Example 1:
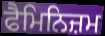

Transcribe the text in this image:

ਫੈਮਿਨਿਜ਼ਮ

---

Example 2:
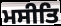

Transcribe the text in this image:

ਮਸੀਤਿ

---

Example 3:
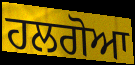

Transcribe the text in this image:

ਹਲਗੋਆ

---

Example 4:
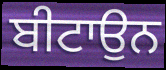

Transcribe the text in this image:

ਬੀਟਾਉਨ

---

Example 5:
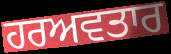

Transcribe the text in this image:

ਹਰਅਵਤਾਰ